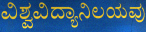
ವಿಶ್ವವಿದ್ಯಾನಿಲಯವು